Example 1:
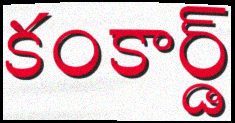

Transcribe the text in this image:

కంకార్డ్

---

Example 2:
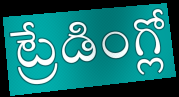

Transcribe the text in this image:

ట్రేడింగ్లో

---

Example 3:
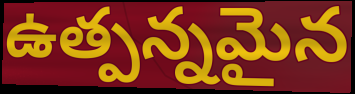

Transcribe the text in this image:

ఉత్పన్నమైన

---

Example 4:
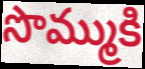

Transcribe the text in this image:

సొమ్ముకి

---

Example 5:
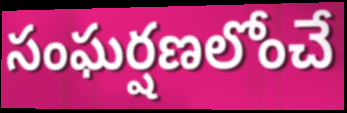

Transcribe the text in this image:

సంఘర్షణలోంచే